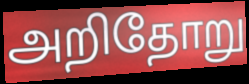
அறிதோறு